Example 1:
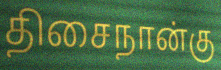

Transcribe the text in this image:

திசைநான்கு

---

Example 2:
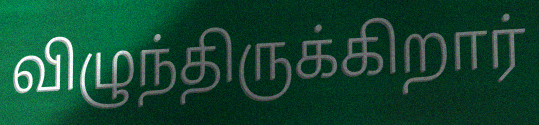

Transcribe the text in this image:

விழுந்திருக்கிறார்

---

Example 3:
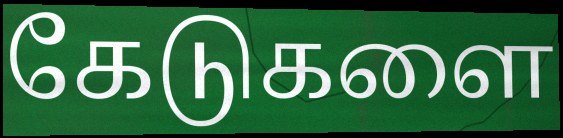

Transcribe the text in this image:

கேடுகளை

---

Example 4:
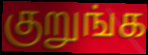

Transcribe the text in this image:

குறுங்க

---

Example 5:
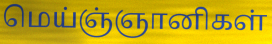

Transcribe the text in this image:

மெய்ஞ்ஞானிகள்